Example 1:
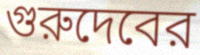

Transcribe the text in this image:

গুরুদেবের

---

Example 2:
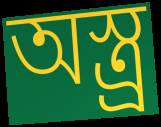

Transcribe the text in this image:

অস্ত্র্র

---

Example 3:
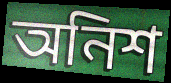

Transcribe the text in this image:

অনিশ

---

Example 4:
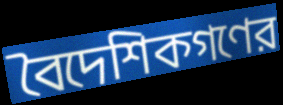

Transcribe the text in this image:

বৈদেশিকগণের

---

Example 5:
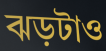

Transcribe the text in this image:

ঝড়টাও